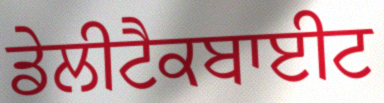
ਡੇਲੀਟੈਕਬਾਈਟ